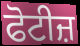
ਫੋਟੀਜ਼